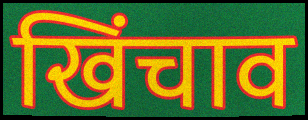
खिंचाव